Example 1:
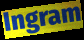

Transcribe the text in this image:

Ingram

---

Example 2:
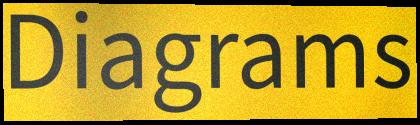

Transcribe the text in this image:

Diagrams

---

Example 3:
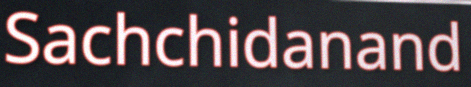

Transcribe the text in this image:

Sachchidanand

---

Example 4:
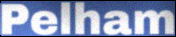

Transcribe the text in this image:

Pelham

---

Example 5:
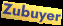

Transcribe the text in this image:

Zubuyer